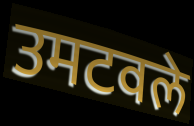
उमटवले